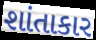
શાંતાકાર